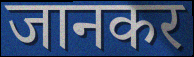
जानकर